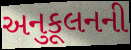
અનુકૂલનની